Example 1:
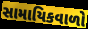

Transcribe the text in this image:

સામાયિકવાળો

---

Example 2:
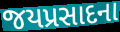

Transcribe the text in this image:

જયપ્રસાદના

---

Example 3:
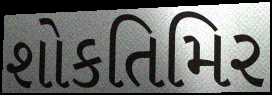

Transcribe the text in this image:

શોકતિમિર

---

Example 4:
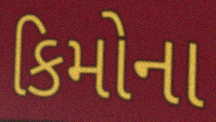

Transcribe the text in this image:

કિમોના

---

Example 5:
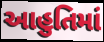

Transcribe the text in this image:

આહુતિમાં